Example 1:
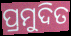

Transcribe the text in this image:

ପ୍ରମୁଦିତ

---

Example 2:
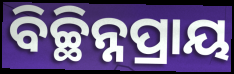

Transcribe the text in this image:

ବିଚ୍ଛିନ୍ନପ୍ରାୟ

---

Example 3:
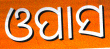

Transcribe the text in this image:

ଓପାସ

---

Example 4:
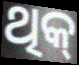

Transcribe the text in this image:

ଥିକ୍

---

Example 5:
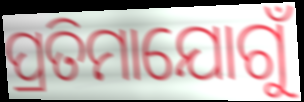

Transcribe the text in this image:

ପ୍ରତିମାଯୋଗୁଁ